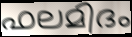
ഫലമിദം